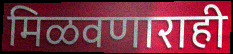
मिळवणाराही